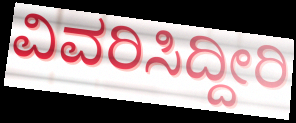
ವಿವರಿಸಿದ್ದೀರಿ